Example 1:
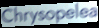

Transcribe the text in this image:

Chrysopelea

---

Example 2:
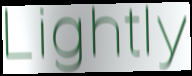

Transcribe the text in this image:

Lightly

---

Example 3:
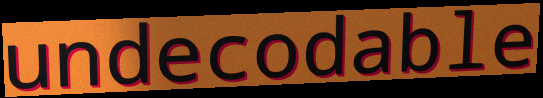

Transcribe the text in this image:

undecodable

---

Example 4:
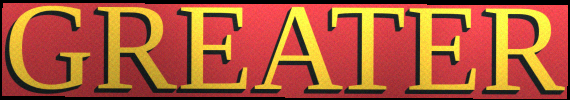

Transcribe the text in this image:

GREATER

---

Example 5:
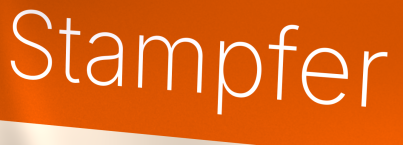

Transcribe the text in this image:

Stampfer